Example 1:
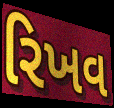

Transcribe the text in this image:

રિખવ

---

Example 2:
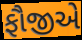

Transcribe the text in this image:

ફૌજીએ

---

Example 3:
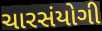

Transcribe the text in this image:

ચારસંયોગી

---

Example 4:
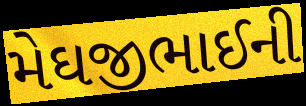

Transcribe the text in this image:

મેઘજીભાઈની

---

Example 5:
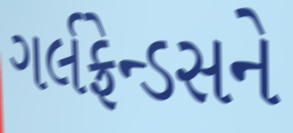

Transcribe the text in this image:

ગર્લફ્રેન્ડસને